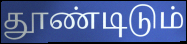
தூண்டிடும்